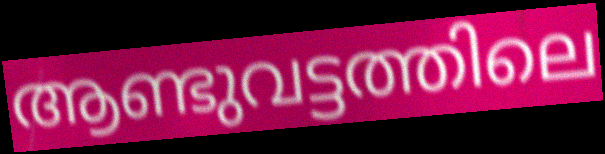
ആണ്ടുവട്ടത്തിലെ